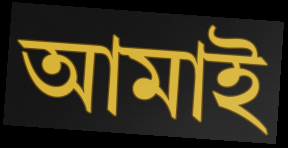
আমাই